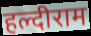
हल्दीराम